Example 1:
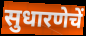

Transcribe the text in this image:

सुधारणेचें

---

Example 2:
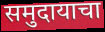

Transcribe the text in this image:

समुदायाचा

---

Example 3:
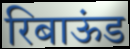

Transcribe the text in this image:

रिबाऊंड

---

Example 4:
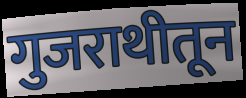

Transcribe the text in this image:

गुजराथीतून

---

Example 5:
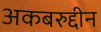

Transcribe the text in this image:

अकबरुद्दीन